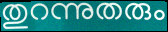
തുറന്നുതരും